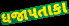
ધજાપતાકા